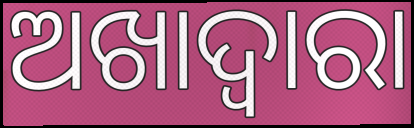
ଅଖାଦ୍ୱାରା